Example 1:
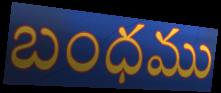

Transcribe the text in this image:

బంధము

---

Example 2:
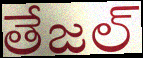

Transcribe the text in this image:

తేజల్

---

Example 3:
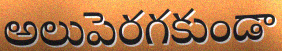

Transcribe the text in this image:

అలుపెరగకుండా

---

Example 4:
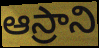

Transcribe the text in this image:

ఆస్రాని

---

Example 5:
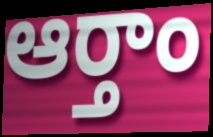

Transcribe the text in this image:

ఆర్తాం